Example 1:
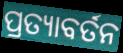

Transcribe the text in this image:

ପ୍ରତ୍ୟାବର୍ତନ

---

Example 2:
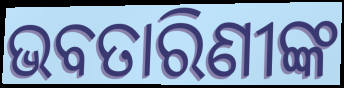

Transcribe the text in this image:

ଭବତାରିଣୀଙ୍କ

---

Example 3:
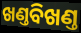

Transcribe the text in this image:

ଖଣ୍ତବିଖଣ୍ତ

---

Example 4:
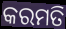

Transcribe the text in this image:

କରମତି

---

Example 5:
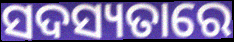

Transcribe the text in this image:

ସଦସ୍ୟତାରେ